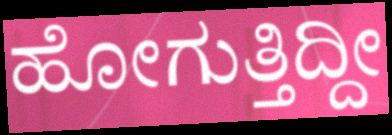
ಹೋಗುತ್ತಿದ್ದೀ